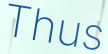
Thus